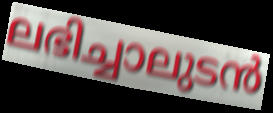
ലഭിച്ചാലുടൻ